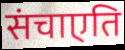
संचाएति